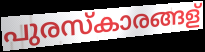
പുരസ്കാരങ്ങള്